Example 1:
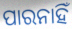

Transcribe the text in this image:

ପାରନାହିଁ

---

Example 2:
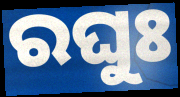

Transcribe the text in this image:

ରଘୁଃ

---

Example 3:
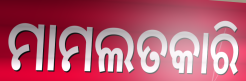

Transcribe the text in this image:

ମାମଲତକାରି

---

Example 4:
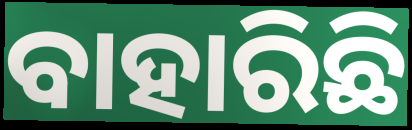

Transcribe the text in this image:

ବାହାରିଛି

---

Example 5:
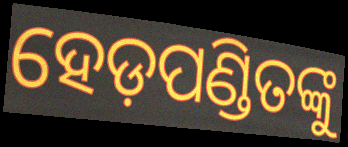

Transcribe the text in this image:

ହେଡ଼ପଣ୍ଡିତଙ୍କୁ